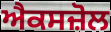
ਐਕਸਜ਼ੋਲ